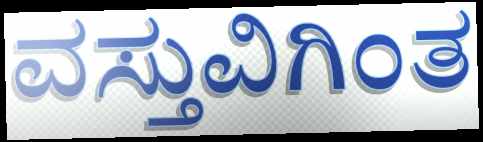
ವಸ್ತುವಿಗಿಂತ